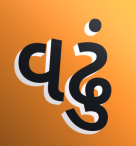
વઢું